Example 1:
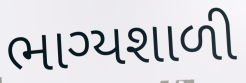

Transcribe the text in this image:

ભાગ્યશાળી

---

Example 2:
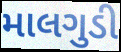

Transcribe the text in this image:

માલગુડી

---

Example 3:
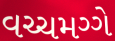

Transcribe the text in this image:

વચ્ચમગ્ગે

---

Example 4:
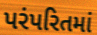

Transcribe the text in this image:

પરંપરિતમાં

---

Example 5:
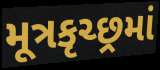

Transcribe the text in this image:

મૂત્રકૃચ્છ્રમાં